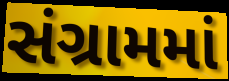
સંગ્રામમાં